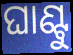
ଘାଣ୍ଟୁ